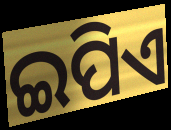
ଇପିଏ